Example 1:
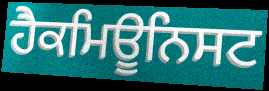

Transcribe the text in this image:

ਹੈਕਮਿਊਨਿਸਟ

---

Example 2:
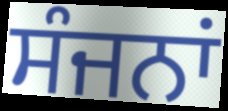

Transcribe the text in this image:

ਸੰਜਨਾਂ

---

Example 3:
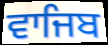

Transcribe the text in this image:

ਵਾਜਿਬ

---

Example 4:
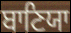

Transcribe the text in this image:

ਬਾਣਿਯਾ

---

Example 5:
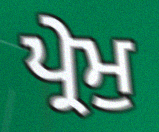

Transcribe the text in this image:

ਪ੍ਰੇਮੁ